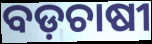
ବଡ଼ଚାଷୀ